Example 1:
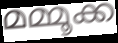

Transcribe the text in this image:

മമ്മൂക്ക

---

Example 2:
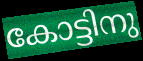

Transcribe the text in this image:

കോട്ടിനു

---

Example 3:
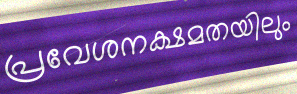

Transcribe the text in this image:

പ്രവേശനക്ഷമതയിലും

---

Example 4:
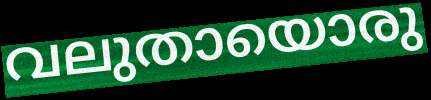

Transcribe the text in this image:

വലുതായൊരു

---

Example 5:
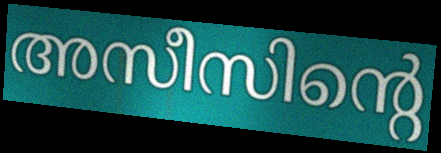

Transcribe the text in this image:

അസീസിന്റെ